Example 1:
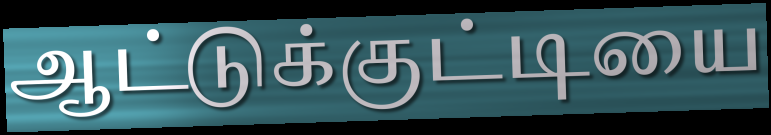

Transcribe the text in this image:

ஆட்டுக்குட்டியை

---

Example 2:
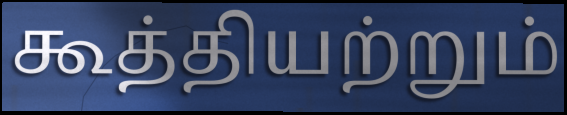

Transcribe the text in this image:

கூத்தியற்றும்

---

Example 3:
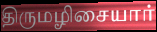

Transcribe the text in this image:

திருமழிசையார்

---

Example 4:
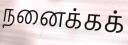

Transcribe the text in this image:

நனைக்கக்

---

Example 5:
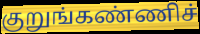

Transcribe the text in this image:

குறுங்கண்ணிச்